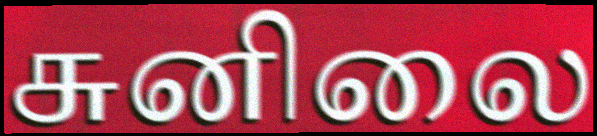
சுனிலை